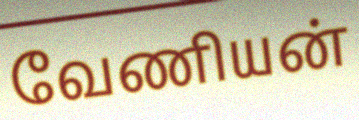
வேணியன்